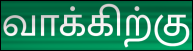
வாக்கிற்கு